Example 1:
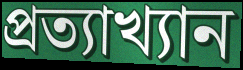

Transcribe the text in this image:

প্রত্যাখ্যান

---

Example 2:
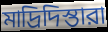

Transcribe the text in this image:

মাদ্রিদিস্তারা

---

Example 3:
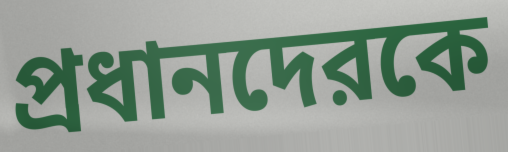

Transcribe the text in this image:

প্রধানদেরকে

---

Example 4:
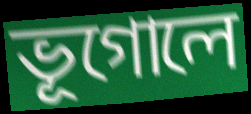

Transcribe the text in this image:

ভূগোলে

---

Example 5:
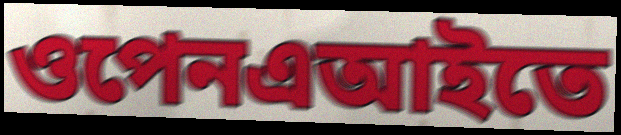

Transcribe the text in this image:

ওপেনএআইতে